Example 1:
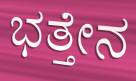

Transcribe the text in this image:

ಭತ್ತೇನ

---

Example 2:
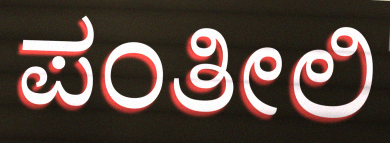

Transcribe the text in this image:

ಪಂತೀಲಿ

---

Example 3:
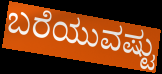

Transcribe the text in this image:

ಬರೆಯುವಷ್ಟು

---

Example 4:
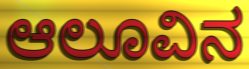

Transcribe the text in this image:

ಆಲೂವಿನ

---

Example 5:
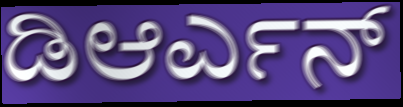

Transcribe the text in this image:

ಡಿಆರ್ಎನ್